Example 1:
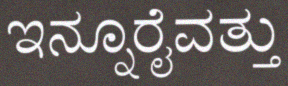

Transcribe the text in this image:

ಇನ್ನೂರೈವತ್ತು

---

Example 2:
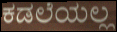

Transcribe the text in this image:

ಕಡಲೆಯಲ್ಲ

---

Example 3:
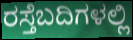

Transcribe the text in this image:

ರಸ್ತೆಬದಿಗಳಲ್ಲಿ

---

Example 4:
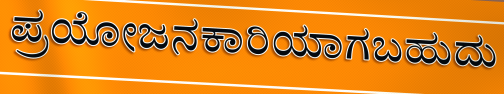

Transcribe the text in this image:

ಪ್ರಯೋಜನಕಾರಿಯಾಗಬಹುದು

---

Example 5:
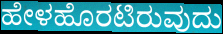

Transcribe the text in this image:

ಹೇಳಹೊರಟಿರುವುದು